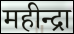
महीन्द्रा